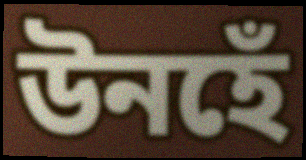
উনহেঁ